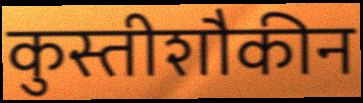
कुस्तीशौकीन